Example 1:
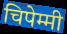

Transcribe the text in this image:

चिपेम्मी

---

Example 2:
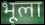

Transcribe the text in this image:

भूला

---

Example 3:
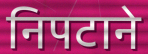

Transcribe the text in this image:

निपटाने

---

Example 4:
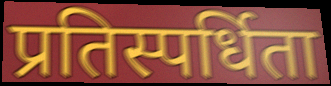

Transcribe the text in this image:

प्रतिस्पर्धिता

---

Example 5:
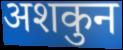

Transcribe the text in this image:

अशकुन